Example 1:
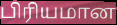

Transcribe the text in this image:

பிரியமான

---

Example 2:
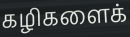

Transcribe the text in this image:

கழிகளைக்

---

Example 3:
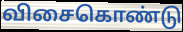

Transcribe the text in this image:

விசைகொண்டு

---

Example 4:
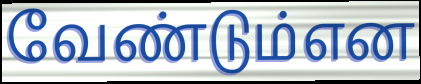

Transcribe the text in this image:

வேண்டும்என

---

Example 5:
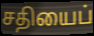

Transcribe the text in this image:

சதியைப்